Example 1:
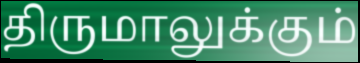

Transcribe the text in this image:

திருமாலுக்கும்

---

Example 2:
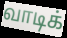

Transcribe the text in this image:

வாடிக்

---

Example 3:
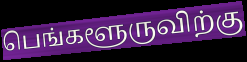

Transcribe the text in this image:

பெங்களூருவிற்கு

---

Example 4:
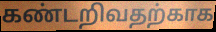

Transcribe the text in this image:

கண்டறிவதற்காக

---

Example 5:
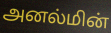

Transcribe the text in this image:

அனல்மின்